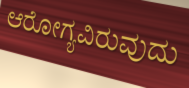
ಆರೋಗ್ಯವಿರುವುದು